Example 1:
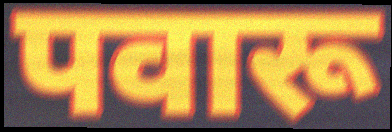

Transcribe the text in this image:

पवारू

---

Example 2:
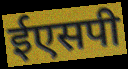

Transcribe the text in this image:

ईएसपी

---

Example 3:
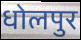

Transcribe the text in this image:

धोलपुर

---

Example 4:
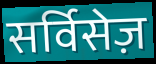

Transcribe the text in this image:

सर्विसेज़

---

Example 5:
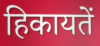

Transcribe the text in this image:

हिकायतें